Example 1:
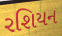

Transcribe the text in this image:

રશિયન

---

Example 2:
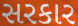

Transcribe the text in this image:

સરકાર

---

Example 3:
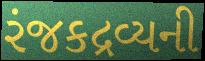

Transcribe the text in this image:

રંજકદ્રવ્યની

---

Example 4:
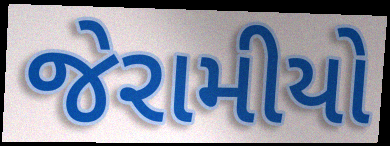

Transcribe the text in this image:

જેરામીયો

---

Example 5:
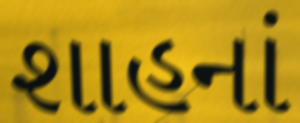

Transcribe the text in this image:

શાહનાં